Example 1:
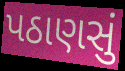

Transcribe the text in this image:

પઠાણસું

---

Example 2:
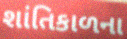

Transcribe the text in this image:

શાંતિકાળના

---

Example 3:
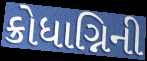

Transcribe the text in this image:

ક્રોધાગ્નિની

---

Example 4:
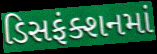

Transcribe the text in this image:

ડિસફંક્શનમાં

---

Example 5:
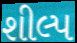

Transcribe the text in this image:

શીલ્પ